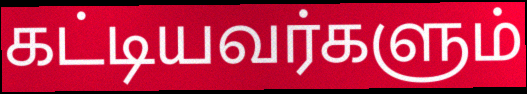
கட்டியவர்களும்